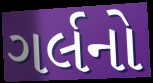
ગર્લનો